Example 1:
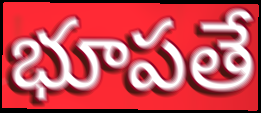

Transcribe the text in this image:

భూపతే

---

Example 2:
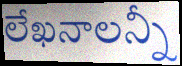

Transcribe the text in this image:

లేఖనాలన్నీ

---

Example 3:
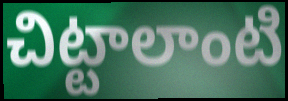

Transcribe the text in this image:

చిట్టాలాంటి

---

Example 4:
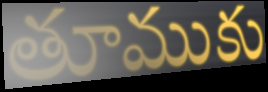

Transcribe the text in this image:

తూముకు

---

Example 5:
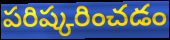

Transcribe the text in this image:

పరిష్కరించడం